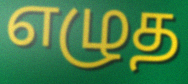
எழுத